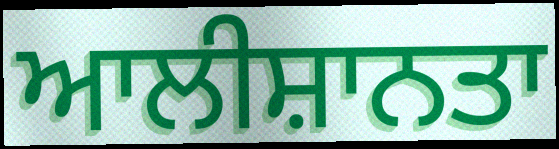
ਆਲੀਸ਼ਾਨਤਾ